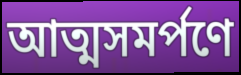
আত্মসমর্পণে